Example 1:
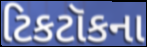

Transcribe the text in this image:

ટિકટૉકના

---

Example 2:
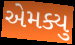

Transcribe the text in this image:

એમક્યુ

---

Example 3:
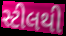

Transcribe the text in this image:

સ્ટીલથી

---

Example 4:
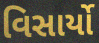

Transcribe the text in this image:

વિસાર્યો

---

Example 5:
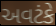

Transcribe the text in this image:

અવટંકે